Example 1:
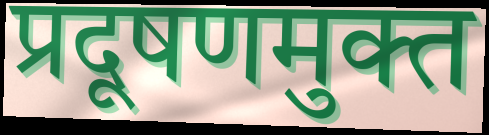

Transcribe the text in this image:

प्रदूषणमुक्त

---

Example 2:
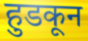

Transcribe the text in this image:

हुडकून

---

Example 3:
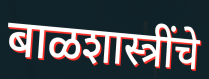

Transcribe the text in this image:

बाळशास्त्रींचे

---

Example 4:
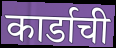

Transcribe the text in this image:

कार्डाची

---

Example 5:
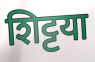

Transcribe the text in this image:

शिट्टया